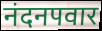
नंदनपवार